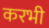
करभी